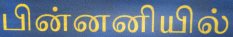
பின்னனியில்